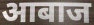
आबाज